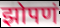
झोपणं